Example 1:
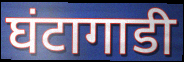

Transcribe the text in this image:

घंटागाडी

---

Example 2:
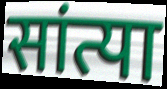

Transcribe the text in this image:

सांत्या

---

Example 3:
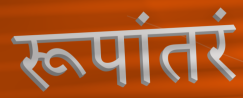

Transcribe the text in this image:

रूपांतरं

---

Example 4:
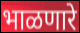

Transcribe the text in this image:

भाळणारे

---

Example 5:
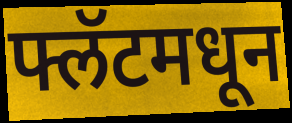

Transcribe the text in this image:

फ्लॅटमधून